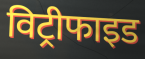
विट्रीफाइड